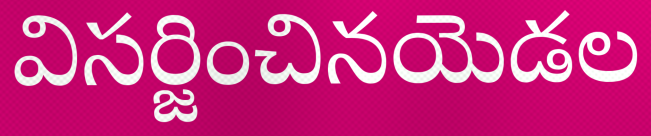
విసర్జించినయెడల